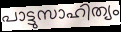
പാട്ടുസാഹിത്യം